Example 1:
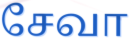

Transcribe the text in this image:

சேவா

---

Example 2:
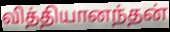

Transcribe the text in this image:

வித்தியானந்தன்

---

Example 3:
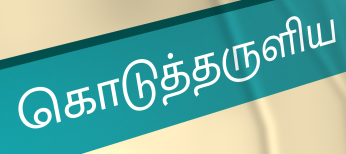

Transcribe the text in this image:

கொடுத்தருளிய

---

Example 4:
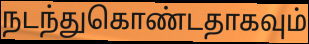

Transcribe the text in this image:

நடந்துகொண்டதாகவும்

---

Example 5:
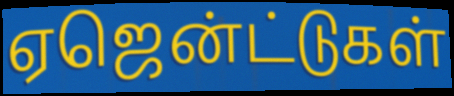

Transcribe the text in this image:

ஏஜென்ட்டுகள்